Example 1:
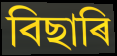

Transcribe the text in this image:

বিছাৰি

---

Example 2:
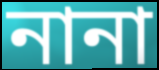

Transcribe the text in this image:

নানা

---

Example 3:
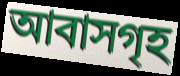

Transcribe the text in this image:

আবাসগৃহ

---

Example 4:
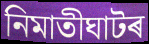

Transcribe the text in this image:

নিমাতীঘাটৰ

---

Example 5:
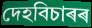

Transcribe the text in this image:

দেহবিচাৰৰ